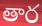
తార